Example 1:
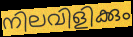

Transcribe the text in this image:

നിലവിളിക്കും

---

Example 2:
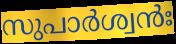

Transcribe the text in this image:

സുപാർശ്വൻഃ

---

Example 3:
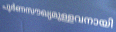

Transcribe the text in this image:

പൂർണസൗഖ്യമുള്ളവനായി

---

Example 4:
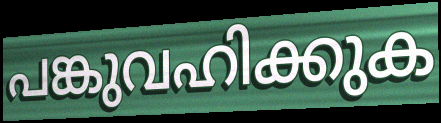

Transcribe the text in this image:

പങ്കുവഹിക്കുക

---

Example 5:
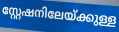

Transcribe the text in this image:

സ്റ്റേഷനിലേയ്ക്കുള്ള